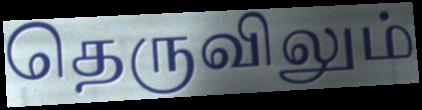
தெருவிலும்